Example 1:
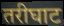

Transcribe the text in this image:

तरीघाट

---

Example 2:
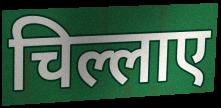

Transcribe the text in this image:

चिल्लाए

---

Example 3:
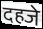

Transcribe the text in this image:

दहजे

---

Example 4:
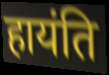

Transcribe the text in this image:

हायंति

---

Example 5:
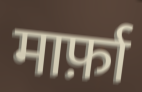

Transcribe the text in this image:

मार्फ़ा